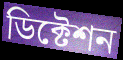
ডিক্টেশন